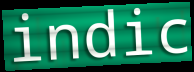
indic